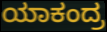
ಯಾಕಂದ್ರ